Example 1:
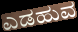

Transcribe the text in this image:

ಎಡಹುವ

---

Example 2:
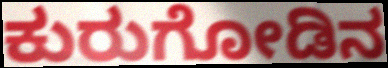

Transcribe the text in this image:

ಕುರುಗೋಡಿನ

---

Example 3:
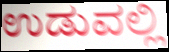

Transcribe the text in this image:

ಉಡುವಲ್ಲಿ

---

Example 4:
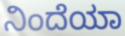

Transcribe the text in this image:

ನಿಂದೆಯಾ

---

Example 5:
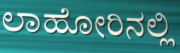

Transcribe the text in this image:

ಲಾಹೋರಿನಲ್ಲಿ